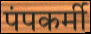
पंपकर्मी